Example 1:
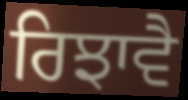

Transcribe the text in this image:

ਰਿਝਾਵੈ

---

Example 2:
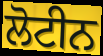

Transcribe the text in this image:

ਲੋਟੀਨ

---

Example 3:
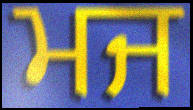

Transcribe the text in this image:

ਮਜ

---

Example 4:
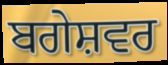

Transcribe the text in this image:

ਬਗੇਸ਼ਵਰ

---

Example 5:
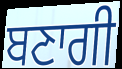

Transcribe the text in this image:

ਬਣਾਗੀ